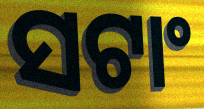
ସଟାଂ